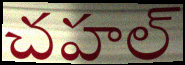
చహల్